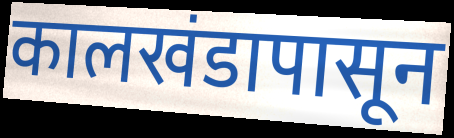
कालखंडापासून